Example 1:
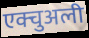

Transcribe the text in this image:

एक्चुअली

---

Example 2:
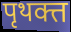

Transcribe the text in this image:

पृथक्त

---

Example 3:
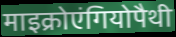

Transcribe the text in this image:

माइक्रोएंगियोपैथी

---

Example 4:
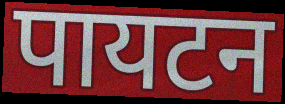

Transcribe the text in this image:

पायटन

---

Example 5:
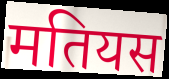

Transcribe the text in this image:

मतियस